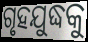
ଗୃହଯୁଦ୍ଧକୁ